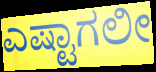
ಎಷ್ಟಾಗಲೀ